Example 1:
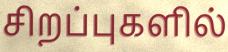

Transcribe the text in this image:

சிறப்புகளில்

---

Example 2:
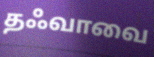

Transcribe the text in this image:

தஃவாவை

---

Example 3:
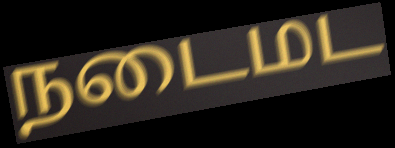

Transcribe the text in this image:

நடைமட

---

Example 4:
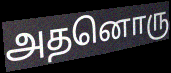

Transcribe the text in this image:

அதனொரு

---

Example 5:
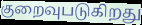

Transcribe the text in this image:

குறைவுபடுகிறது